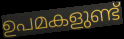
ഉപമകളുണ്ട്